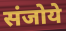
संजोये